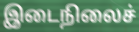
இடைநிலைச்